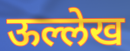
ऊल्लेख